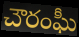
చౌరంఘీ